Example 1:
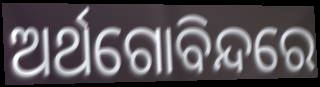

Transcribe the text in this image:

ଅର୍ଥଗୋବିନ୍ଦରେ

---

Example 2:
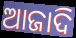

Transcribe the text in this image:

ଆଜାଦି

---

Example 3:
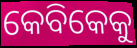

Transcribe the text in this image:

କେବିକେକୁ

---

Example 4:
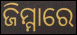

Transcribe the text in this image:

ଜିମ୍ମାରେ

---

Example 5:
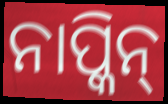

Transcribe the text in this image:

ନାପ୍କିନ୍